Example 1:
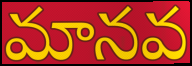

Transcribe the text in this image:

మానవ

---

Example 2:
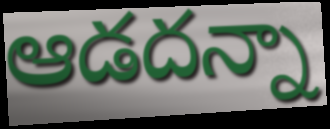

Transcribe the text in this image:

ఆడదన్నా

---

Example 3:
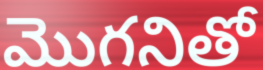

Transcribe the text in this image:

మొగనితో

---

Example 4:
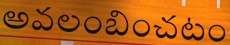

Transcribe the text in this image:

అవలంబించటం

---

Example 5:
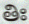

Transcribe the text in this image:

తిః